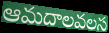
ఆమదాలవలస